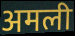
अमली